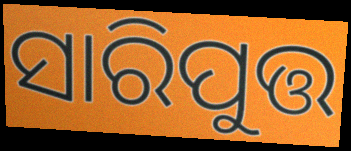
ସାରିପୁତ୍ତ